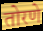
तोरणे